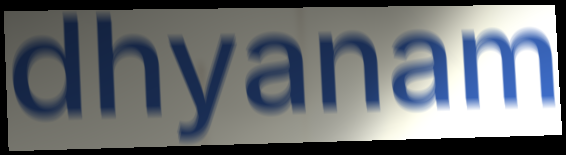
dhyanam